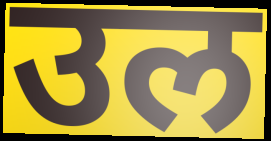
उल